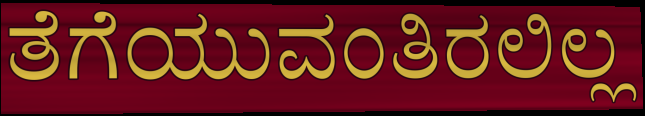
ತೆಗೆಯುವಂತಿರಲಿಲ್ಲ